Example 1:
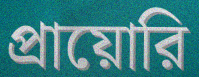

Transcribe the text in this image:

প্রায়োরি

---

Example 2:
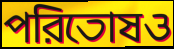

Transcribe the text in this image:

পরিতোষও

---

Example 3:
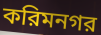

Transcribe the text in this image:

করিমনগর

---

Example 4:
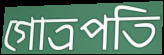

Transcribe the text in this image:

গোত্রপতি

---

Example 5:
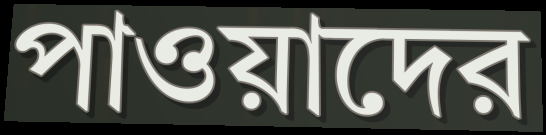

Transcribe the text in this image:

পাওয়াদের